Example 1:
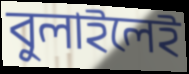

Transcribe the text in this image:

বুলাইলেই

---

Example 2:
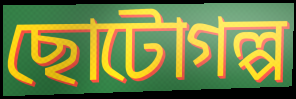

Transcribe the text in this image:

ছোটোগল্প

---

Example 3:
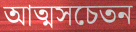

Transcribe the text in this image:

আত্মসচেতন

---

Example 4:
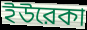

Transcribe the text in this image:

ইউরেকা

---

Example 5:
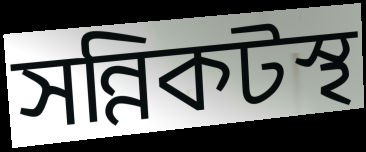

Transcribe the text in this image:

সন্নিকটস্থ